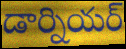
డార్నియర్